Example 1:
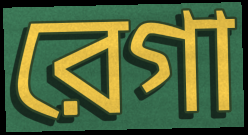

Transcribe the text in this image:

রেগা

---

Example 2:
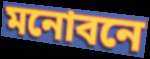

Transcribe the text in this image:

মনোবনে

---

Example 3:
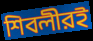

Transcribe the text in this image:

শিবলীরই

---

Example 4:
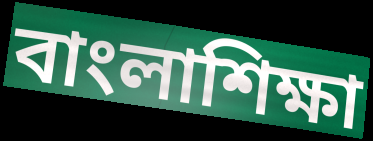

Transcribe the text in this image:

বাংলাশিক্ষা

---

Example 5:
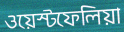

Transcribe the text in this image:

ওয়েস্টফেলিয়া